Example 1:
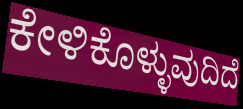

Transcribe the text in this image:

ಕೇಳಿಕೊಳ್ಳುವುದಿದೆ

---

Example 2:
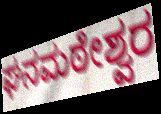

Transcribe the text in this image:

ಘನಮಠೇಶ್ವರ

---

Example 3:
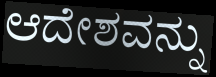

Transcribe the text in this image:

ಆದೇಶವನ್ನು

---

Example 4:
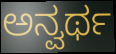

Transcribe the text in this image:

ಅನ್ವರ್ಥ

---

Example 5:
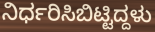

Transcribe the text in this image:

ನಿರ್ಧರಿಸಿಬಿಟ್ಟಿದ್ದಳು